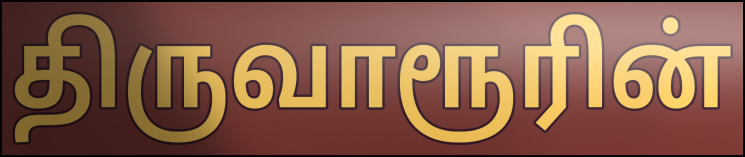
திருவாரூரின்